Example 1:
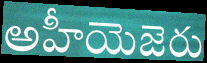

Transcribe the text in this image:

అహీయెజెరు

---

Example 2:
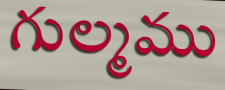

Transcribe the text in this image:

గుల్మము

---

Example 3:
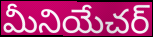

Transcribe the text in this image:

మీనియేచర్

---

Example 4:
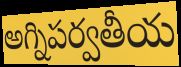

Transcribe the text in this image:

అగ్నిపర్వతీయ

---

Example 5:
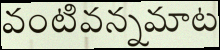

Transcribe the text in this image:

వంటివన్నమాట